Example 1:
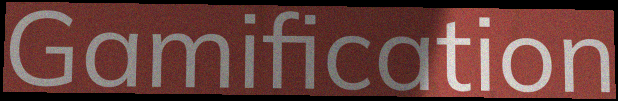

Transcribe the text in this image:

Gamification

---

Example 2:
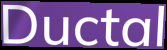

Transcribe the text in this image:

Ductal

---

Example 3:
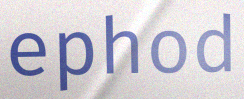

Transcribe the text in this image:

ephod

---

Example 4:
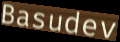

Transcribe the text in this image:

Basudev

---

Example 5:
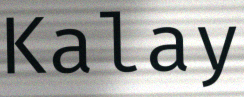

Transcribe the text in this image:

Kalay